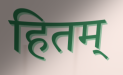
हितम्